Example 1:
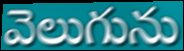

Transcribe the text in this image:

వెలుగును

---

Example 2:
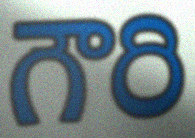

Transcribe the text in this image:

గౌరి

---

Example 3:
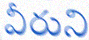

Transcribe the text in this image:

వీరుని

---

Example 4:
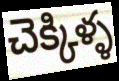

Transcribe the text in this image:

చెక్కిళ్ళ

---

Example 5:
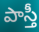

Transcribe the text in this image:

పాస్తీ